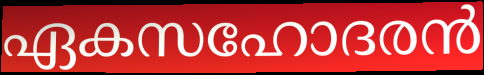
ഏകസഹോദരൻ